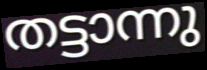
തട്ടാന്നു